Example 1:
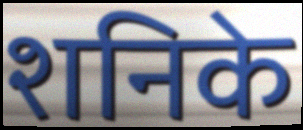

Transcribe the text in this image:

शनिके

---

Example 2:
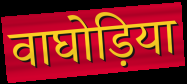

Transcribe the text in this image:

वाघोड़िया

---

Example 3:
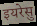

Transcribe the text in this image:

इयरेसु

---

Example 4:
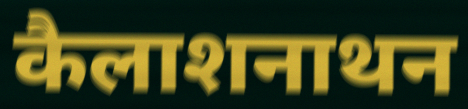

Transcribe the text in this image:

कैलाशनाथन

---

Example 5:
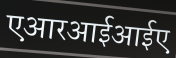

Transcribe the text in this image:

एआरआईआईए